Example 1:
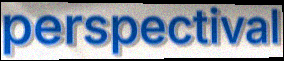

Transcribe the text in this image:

perspectival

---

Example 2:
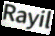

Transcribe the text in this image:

Rayil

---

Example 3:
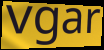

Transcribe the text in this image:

vgar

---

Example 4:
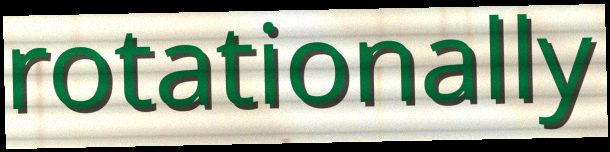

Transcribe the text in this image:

rotationally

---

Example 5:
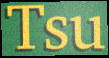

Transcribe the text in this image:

Tsu